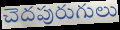
చెదపురుగులు